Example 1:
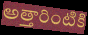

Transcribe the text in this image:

అత్తారింటికి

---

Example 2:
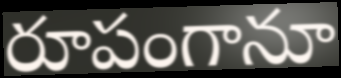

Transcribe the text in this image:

రూపంగానూ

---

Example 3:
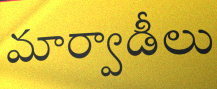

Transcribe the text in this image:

మార్వాడీలు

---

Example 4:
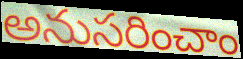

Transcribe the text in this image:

అనుసరించాం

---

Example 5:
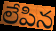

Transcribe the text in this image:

లేపిన